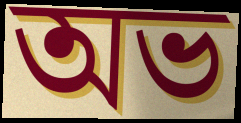
অভ